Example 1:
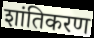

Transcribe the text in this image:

शांतिकरण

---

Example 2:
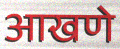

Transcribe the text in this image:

आखणे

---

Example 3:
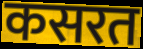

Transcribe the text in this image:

कसरत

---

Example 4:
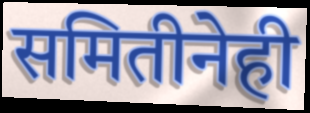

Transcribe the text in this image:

समितीनेही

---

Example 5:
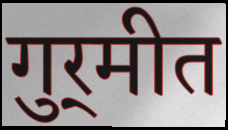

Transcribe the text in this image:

गुर्मीत